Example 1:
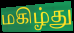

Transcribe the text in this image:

மகிழ்து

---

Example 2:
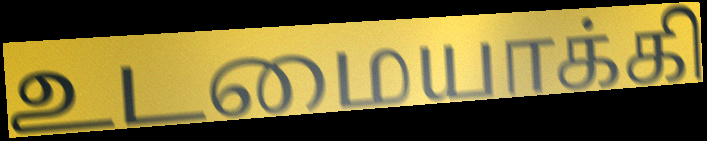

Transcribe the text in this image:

உடமையாக்கி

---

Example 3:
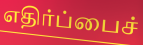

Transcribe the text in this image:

எதிர்ப்பைச்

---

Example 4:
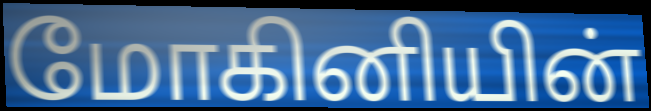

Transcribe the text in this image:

மோகினியின்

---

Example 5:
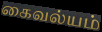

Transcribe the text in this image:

கைவல்யம்